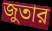
জুতার